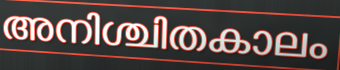
അനിശ്ചിതകാലം